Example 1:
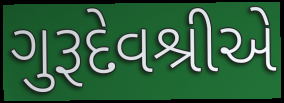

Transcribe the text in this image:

ગુરૂદેવશ્રીએ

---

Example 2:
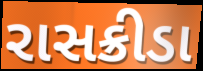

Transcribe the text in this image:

રાસક્રીડા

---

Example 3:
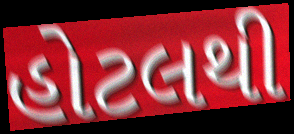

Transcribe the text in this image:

હોટલથી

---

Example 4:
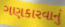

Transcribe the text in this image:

ગણકારવાનું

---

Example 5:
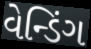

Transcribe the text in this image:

વેન્ડિંગ